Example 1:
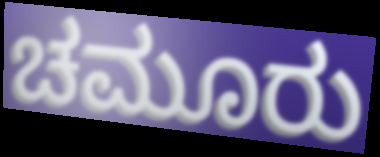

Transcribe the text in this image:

ಚಮೂರು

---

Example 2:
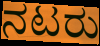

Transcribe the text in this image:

ನಟರು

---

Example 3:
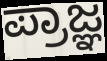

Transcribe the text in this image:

ಪ್ರಾಜ್ಞ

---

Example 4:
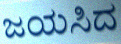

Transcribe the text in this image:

ಜಯಸಿದ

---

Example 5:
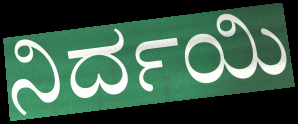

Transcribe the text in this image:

ನಿರ್ದಯಿ